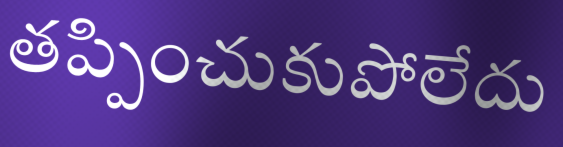
తప్పించుకుపోలేదు